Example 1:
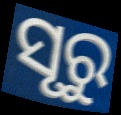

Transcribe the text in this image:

ସୃରୁ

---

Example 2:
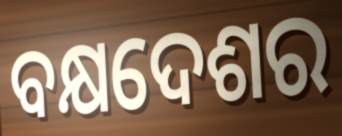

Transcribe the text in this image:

ବକ୍ଷଦେଶର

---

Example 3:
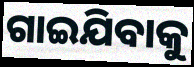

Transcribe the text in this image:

ଗାଇଯିବାକୁ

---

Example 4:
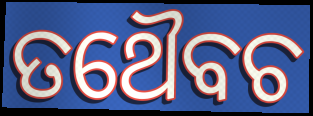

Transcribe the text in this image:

ତଥୈବଚ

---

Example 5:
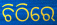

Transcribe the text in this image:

ଚିଠିରେ